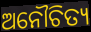
ଅନୌଚିତ୍ୟ